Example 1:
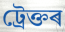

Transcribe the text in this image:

ট্ৰেক্তৰ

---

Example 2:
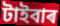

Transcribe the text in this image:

টাইবাৰ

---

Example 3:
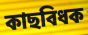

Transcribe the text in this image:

কাছবিধক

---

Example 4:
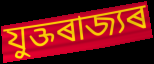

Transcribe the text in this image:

যুক্তৰাজ্যৰ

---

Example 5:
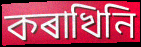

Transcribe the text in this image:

কৰাখিনি